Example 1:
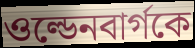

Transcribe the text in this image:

ওল্ডেনবার্গকে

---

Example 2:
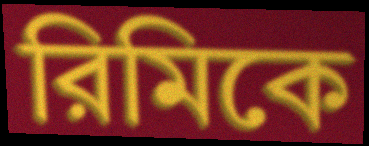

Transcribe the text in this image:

রিমিকে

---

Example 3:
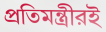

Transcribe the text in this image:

প্রতিমন্ত্রীরই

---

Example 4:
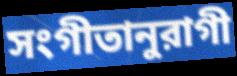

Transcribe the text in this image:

সংগীতানুরাগী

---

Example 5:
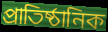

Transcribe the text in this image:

প্রাতিষ্ঠানিক